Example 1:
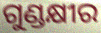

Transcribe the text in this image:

ଗୁଣ୍ଡକ୍ଷୀର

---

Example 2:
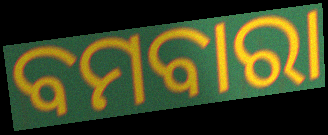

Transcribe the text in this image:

ବମବାରା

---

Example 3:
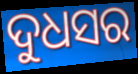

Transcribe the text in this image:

ଦୁଧସର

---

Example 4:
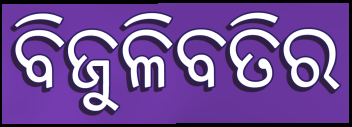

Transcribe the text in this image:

ବିଜୁଳିବତିର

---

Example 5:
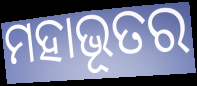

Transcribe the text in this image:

ମହାଭୂତର